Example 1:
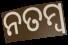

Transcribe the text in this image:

ନତମ୍ବ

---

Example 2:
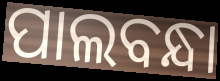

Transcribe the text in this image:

ପାଲବନ୍ଧା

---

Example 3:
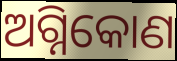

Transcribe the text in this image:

ଅଗ୍ନିକୋଣ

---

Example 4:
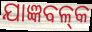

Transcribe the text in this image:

ଯାଜ୍ଞବଳ୍‍କ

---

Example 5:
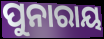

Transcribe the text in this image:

ପୁନାରାୟ